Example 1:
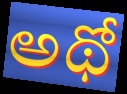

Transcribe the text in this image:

అథో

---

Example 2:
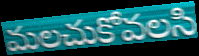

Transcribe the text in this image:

మలచుకోవలసి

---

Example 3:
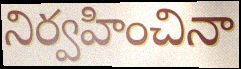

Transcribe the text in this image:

నిర్వహించినా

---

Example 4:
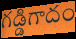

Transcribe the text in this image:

గడ్డిగాదం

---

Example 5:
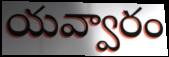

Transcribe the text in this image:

యవ్వారం